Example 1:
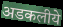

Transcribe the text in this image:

अडकलीये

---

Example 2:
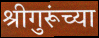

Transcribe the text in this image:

श्रीगुरूंच्या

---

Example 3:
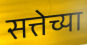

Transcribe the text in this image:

सत्तेच्या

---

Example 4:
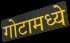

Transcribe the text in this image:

गोटामध्ये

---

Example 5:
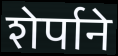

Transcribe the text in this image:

शेर्पाने